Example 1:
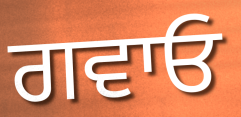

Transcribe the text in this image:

ਗਵਾਓ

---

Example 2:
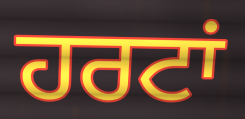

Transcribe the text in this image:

ਹਰਟਾਂ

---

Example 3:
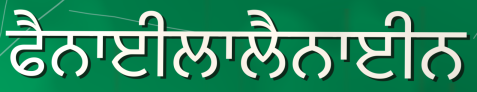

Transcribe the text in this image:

ਫੈਨਾਈਲਾਲੈਨਾਈਨ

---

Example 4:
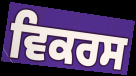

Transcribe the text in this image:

ਵਿਕਰਸ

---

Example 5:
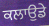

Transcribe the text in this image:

ਕਲਾਉਡੇ